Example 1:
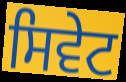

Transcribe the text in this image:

ਸਿਵੇਟ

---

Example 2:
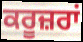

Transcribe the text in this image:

ਕਰੂਜ਼ਰਾਂ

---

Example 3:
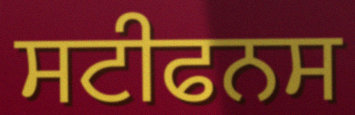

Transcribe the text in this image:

ਸਟੀਫਨਸ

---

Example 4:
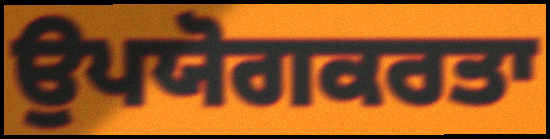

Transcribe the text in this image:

ਉਪਯੋਗਕਰਤਾ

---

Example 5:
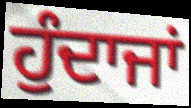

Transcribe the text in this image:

ਹੁੰਦਾਜਾਂ